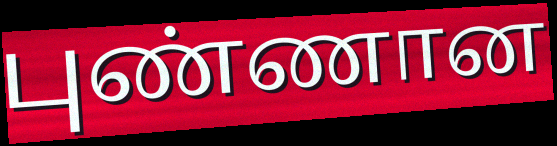
புண்ணான